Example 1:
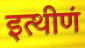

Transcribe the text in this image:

इत्थीणं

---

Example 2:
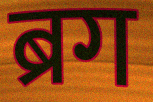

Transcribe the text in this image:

ब्रग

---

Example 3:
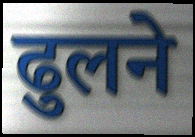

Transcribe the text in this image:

ढुलने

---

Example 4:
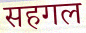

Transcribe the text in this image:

सहगल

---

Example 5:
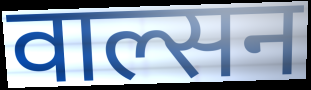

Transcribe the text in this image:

वाल्सन